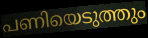
പണിയെടുത്തും